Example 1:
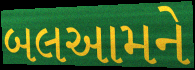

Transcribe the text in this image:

બલઆમને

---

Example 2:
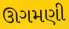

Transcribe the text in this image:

ઊગમણી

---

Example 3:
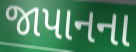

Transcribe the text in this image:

જાપાનના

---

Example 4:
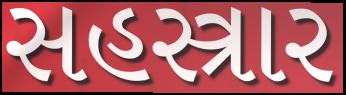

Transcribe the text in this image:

સહસ્ત્રાર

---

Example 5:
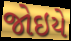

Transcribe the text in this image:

જોઇયે